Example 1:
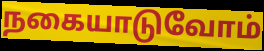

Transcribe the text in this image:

நகையாடுவோம்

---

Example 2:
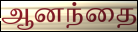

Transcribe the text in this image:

ஆனந்தை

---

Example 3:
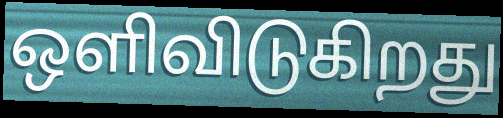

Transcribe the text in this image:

ஒளிவிடுகிறது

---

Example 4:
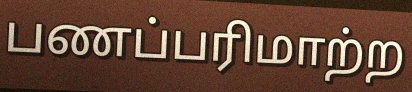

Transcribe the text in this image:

பணப்பரிமாற்ற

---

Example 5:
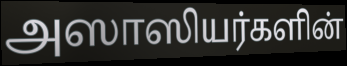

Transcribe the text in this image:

அஸாஸியர்களின்